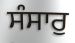
ਸੰਸਾਰੁ